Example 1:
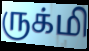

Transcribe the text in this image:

ருக்மி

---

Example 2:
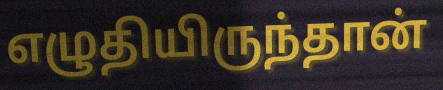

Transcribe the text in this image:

எழுதியிருந்தான்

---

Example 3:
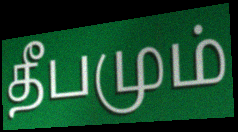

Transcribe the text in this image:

தீபமும்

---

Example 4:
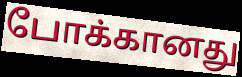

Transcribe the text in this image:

போக்கானது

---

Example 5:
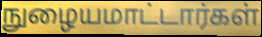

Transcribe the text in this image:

நுழையமாட்டார்கள்